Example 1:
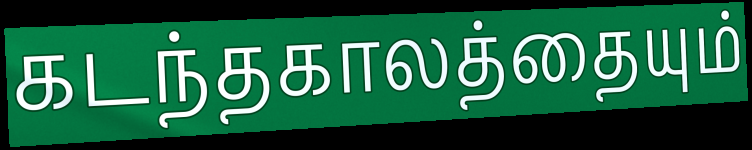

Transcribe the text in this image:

கடந்தகாலத்தையும்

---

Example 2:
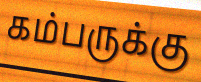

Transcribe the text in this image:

கம்பருக்கு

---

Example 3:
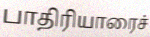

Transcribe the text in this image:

பாதிரியாரைச்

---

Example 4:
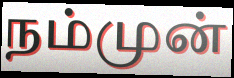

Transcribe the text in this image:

நம்முன்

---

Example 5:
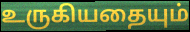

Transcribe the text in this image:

உருகியதையும்